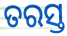
ତରସ୍ତ